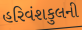
હરિવંશકુલની